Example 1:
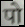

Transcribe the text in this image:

पो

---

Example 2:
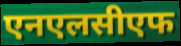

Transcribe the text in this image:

एनएलसीएफ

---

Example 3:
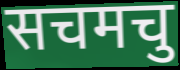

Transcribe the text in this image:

सचमचु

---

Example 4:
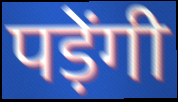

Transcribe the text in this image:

पड़ेंगी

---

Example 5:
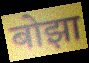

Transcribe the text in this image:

बोझा